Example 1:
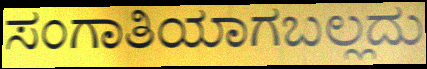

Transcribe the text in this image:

ಸಂಗಾತಿಯಾಗಬಲ್ಲದು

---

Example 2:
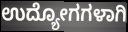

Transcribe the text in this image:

ಉದ್ಯೋಗಗಳಾಗಿ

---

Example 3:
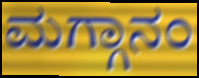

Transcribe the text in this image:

ಮಗ್ಗಾನಂ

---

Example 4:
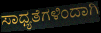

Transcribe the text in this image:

ಸಾಧ್ಯತೆಗಳಿಂದಾಗಿ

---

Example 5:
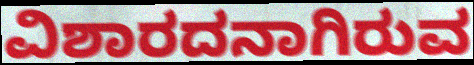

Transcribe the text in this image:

ವಿಶಾರದನಾಗಿರುವ